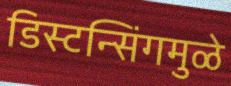
डिस्टन्सिंगमुळे